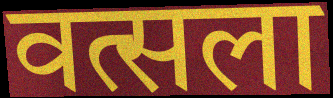
वत्‍सला